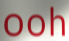
ooh